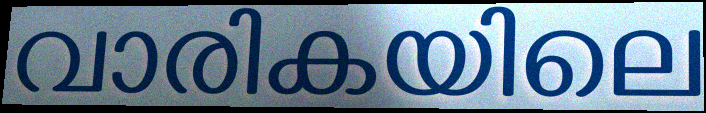
വാരികയിലെ